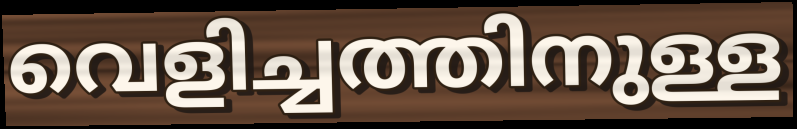
വെളിച്ചത്തിനുള്ള